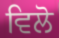
ਵਿਲੋ